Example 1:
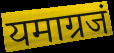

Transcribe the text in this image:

यमाग्रजं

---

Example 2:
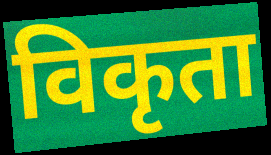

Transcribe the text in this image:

विकृता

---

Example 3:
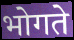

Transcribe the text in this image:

भोगते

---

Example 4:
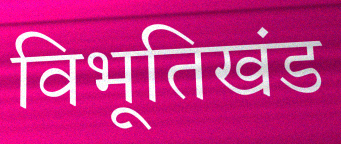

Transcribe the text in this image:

विभूतिखंड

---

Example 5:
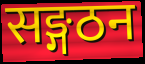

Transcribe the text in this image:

सङ्गठन